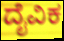
ದೈವಿಕ